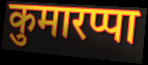
कुमारप्पा